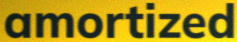
amortized